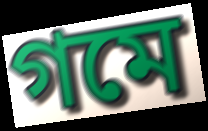
গমে